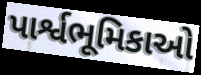
પાર્શ્વભૂમિકાઓ